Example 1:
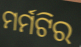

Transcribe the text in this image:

ମର୍ମଟିର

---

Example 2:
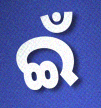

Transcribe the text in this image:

ଇଁ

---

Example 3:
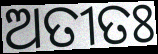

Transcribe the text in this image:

ଅତୀତଃ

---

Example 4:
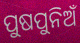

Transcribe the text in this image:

ପୁଷପୁନିଅଁ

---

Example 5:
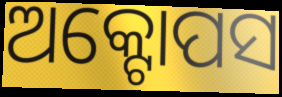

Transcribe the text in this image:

ଅକ୍ଟୋପସ